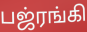
பஜ்ரங்கி